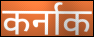
कर्नाक